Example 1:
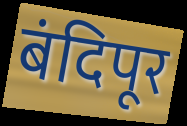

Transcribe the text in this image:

बंदिपूर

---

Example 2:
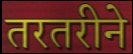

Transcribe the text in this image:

तरतरीने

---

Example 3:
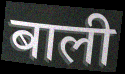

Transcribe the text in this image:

बाली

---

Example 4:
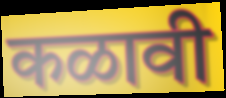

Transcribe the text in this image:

कळावी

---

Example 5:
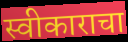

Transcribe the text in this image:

स्वीकाराचा